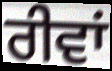
ਰੀਵਾਂ